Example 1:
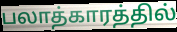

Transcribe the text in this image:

பலாத்காரத்தில்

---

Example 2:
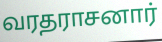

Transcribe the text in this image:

வரதராசனார்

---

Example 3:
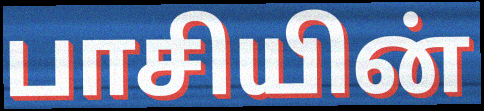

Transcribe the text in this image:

பாசியின்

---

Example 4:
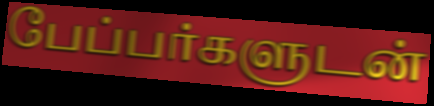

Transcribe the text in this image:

பேப்பர்களுடன்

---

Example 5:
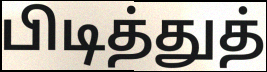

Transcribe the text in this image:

பிடித்துத்